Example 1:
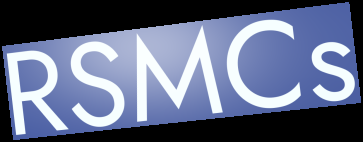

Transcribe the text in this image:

RSMCs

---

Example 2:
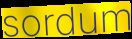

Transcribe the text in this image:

sordum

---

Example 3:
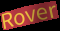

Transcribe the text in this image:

Rover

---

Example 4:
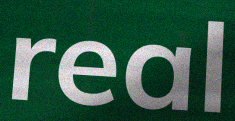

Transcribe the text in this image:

real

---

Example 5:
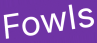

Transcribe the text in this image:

Fowls